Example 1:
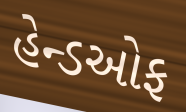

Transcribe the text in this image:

હેન્ડઓફ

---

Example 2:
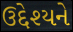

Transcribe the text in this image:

ઉદ્દેશ્યને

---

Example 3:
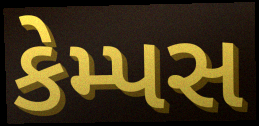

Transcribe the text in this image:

કેમ્પસ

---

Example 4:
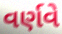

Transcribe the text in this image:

વર્ણવે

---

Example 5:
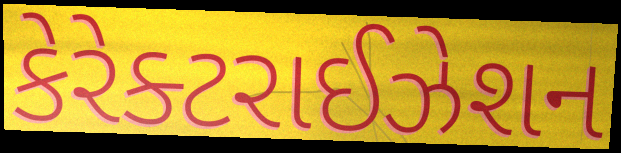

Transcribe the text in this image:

કેરેક્ટરાઈઝેશન